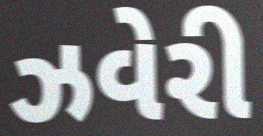
ઝવેરી